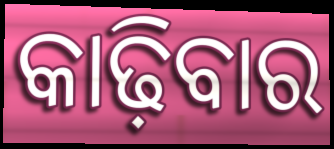
କାଢ଼ିବାର